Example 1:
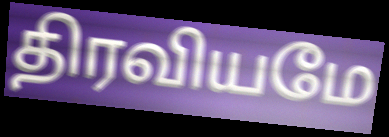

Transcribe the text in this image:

திரவியமே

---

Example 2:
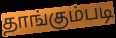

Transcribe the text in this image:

தாங்கும்படி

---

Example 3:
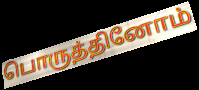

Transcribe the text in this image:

பொருத்தினோம்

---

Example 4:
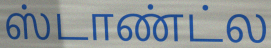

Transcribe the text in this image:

ஸ்டாண்ட்ல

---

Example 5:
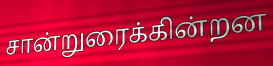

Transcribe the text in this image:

சான்றுரைக்கின்றன